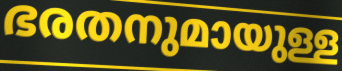
ഭരതനുമായുള്ള